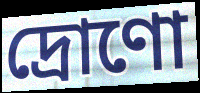
দ্রোণো